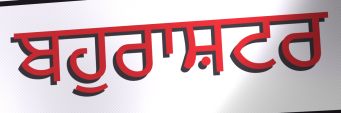
ਬਹੁਰਾਸ਼ਟਰ